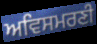
ਅਵਿਸਮਰਣੀ